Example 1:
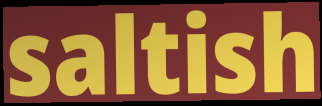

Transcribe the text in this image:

saltish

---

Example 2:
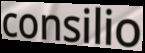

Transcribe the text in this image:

consilio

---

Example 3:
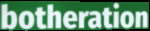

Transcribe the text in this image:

botheration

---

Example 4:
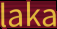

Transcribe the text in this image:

laka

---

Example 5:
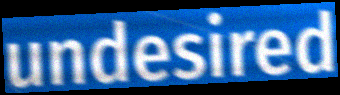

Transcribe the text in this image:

undesired